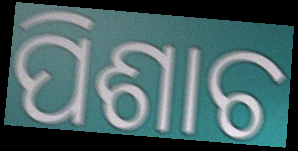
ପିଶାଚ